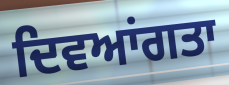
ਦਿਵਆਂਗਤਾ